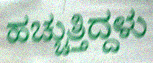
ಹಚ್ಚುತ್ತಿದ್ದಳು